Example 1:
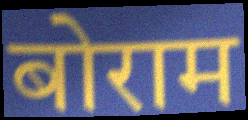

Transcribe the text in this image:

बोराम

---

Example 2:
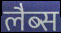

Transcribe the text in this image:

लैब्स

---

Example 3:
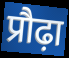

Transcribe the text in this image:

प्रौढ़ा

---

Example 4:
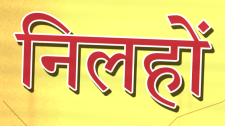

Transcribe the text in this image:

निलहों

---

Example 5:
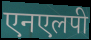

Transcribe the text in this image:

एनएलपी